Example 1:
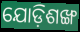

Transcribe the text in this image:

ଯୋଡ଼ିଶଙ୍ଖ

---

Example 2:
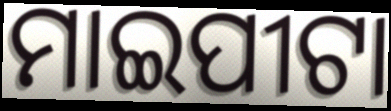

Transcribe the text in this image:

ମାଇପୀଟା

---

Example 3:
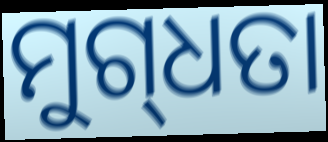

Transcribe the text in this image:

ମୁଗ୍‌ଧତା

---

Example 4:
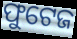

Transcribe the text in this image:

ଫୁଟେଜ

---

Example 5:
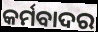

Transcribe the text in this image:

କର୍ମବାଦର